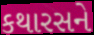
કથારસને